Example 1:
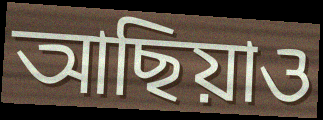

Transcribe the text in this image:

আছিয়াও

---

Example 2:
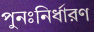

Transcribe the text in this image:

পুনঃনির্ধারণ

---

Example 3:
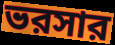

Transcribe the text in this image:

ভরসার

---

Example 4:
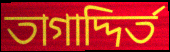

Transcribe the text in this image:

তাগাদ্দির্ত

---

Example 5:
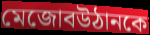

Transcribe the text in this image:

মেজোবউঠানকে